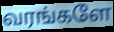
வரங்களே